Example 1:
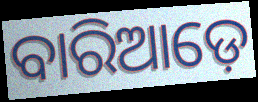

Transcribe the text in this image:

ବାରିଆଡ଼େ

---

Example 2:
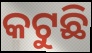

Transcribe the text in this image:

କଟୁଛି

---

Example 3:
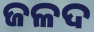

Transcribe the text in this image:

ଜଳଦ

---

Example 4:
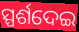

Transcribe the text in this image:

ସ୍ପର୍ଶଦେଇ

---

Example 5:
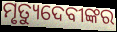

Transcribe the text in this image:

ମୃତ୍ୟୁଦେବୀଙ୍କର